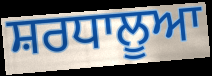
ਸ਼ਰਧਾਲੂਆ